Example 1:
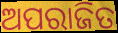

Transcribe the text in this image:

ଅପରାଜିତ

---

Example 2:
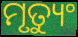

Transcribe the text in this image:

ମୃତ୍ୟୁଂ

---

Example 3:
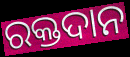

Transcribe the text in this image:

ରକ୍ତଦାନ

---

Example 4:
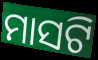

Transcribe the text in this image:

ମାସଟି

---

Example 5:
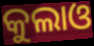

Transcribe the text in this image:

କୁଲାଓ